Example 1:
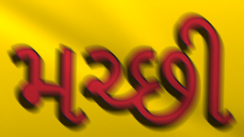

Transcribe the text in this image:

મચ્છી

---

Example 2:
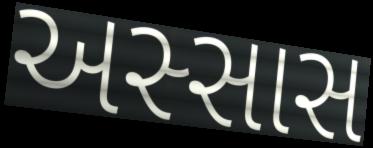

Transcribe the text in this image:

અસ્સાસ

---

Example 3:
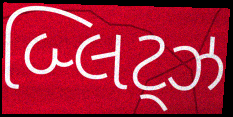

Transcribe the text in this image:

બ્લિટ્ઝ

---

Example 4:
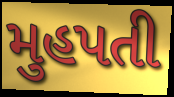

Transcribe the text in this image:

મુહપતી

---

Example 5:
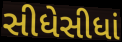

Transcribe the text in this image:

સીધેસીધાં